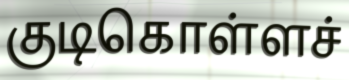
குடிகொள்ளச்